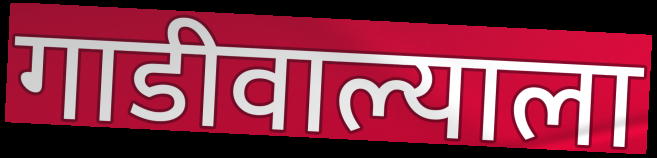
गाडीवाल्याला